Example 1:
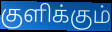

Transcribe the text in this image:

குளிக்கும்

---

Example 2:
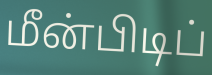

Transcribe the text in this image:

மீன்பிடிப்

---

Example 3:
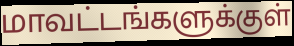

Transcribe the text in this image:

மாவட்டங்களுக்குள்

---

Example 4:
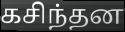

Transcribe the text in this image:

கசிந்தன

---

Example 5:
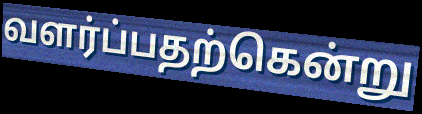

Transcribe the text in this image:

வளர்ப்பதற்கென்று